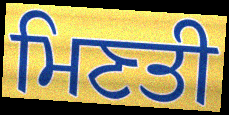
ਮਿਣਤੀ